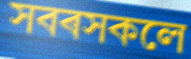
সবৰসকলে